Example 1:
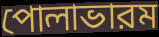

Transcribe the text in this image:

পোলাভারম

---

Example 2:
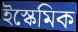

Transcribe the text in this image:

ইস্কেমিক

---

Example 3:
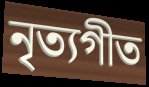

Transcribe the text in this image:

নৃত্যগীত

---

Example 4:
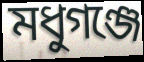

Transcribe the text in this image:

মধুগঞ্জে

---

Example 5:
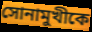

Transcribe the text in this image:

সোনামুখীকে